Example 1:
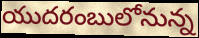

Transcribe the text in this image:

యుదరంబులోనున్న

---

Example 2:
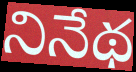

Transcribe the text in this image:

నినేథ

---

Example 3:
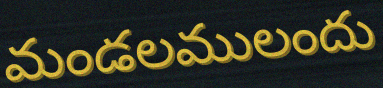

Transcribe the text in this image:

మండలములందు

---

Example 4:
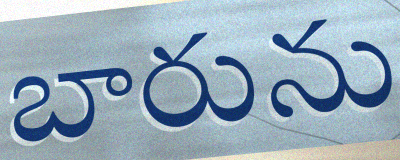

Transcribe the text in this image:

బారును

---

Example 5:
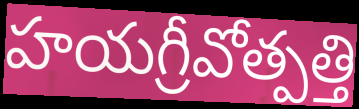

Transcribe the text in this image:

హయగ్రీవోత్పత్తి